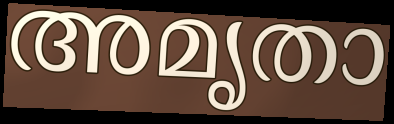
അമൃതാ